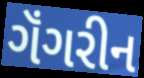
ગૅંગરીન